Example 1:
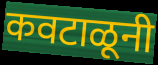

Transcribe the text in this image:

कवटाळूनी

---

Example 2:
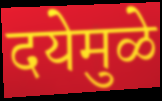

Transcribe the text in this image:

दयेमुळे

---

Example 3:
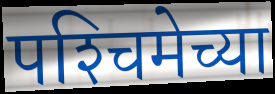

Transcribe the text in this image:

पश्चिमेच्या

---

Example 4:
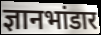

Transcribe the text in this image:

ज्ञानभांडार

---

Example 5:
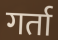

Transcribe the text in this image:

गर्ता